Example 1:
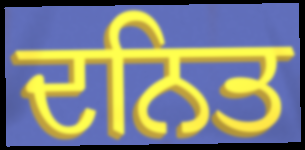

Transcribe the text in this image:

ਦਨਿਤ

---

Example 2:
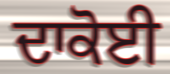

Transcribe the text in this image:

ਦਾਕੋਈ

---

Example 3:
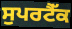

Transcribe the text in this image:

ਸੁਪਰਟੈੱਕ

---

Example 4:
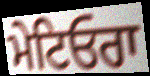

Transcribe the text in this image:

ਮੇਟਿਓਰਾ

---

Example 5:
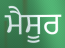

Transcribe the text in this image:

ਮੈਸੂਰ